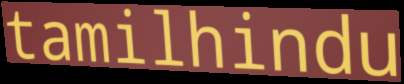
tamilhindu